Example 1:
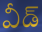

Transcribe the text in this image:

వీడ్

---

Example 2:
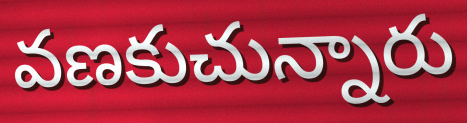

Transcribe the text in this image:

వణకుచున్నారు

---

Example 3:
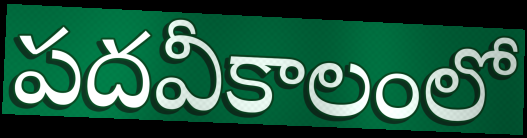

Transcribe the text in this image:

పదవీకాలంలో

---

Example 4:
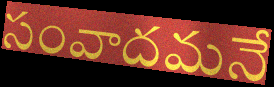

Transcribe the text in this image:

సంవాదమనే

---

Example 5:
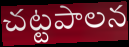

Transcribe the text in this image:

చట్టపాలన